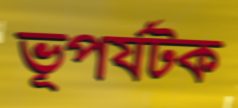
ভূপর্যটক